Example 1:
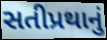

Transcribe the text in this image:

સતીપ્રથાનું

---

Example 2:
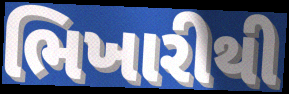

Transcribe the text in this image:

ભિખારીથી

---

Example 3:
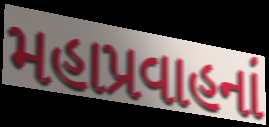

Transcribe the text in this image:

મહાપ્રવાહનાં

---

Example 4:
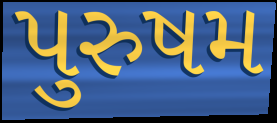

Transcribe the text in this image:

પુરુષમ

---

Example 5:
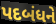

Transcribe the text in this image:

પદબંધને